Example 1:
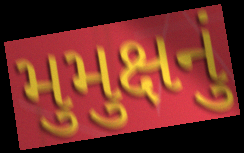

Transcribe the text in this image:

મુમુક્ષનું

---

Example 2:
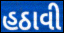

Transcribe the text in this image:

હઠાવી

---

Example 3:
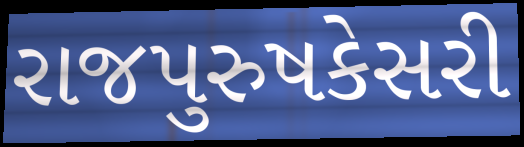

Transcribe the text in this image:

રાજપુરુષકેસરી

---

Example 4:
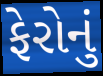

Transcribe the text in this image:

ફેરોનું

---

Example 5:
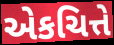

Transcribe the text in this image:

એકચિત્તે